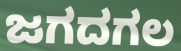
ಜಗದಗಲ